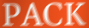
PACK